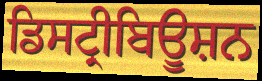
ਡਿਸਟ੍ਰੀਬਿਊਸ਼ਨ